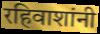
रहिवाशांनी